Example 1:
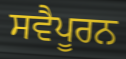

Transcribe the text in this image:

ਸਵੈਪੂਰਨ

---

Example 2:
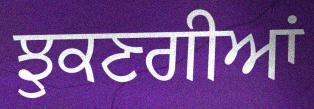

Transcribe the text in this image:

ਝੁਕਣਗੀਆਂ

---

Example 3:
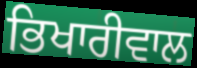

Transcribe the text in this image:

ਭਿਖਾਰੀਵਾਲ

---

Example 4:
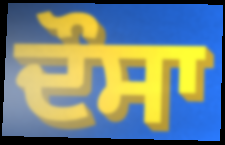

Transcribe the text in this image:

ਦੌਸਾ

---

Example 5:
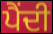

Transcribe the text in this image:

ਪੈਂਦੀ